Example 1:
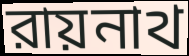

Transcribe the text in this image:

রায়নাথ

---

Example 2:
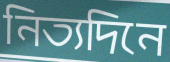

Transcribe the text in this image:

নিত্যদিনে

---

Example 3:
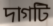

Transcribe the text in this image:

দাগটি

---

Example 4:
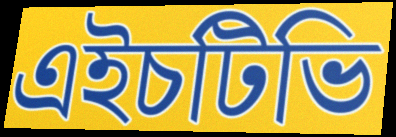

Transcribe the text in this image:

এইচটিভি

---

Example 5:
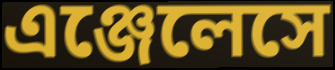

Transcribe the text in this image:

এঞ্জেলেসে